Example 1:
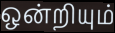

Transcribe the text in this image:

ஒன்றியும்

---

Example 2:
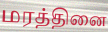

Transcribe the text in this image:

மரத்தினை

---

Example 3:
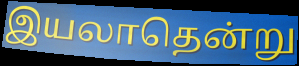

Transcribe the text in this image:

இயலாதென்று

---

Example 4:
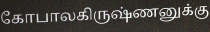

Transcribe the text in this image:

கோபாலகிருஷ்ணனுக்கு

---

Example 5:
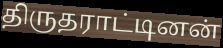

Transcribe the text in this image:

திருதராட்டினன்